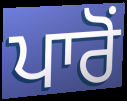
ਪਾਰੋਂ